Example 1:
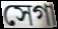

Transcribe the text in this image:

সেগা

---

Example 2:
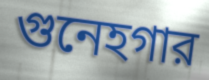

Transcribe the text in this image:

গুনেহগার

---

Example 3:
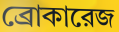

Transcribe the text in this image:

ব্রোকারেজ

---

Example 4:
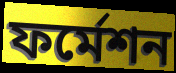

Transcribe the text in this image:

ফর্মেশন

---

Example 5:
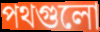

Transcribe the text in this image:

পথগুলো